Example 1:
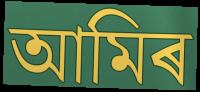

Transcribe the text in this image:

আমিৰ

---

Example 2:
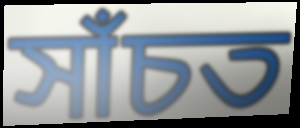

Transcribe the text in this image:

সাঁচত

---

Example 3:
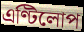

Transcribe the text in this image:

এণ্টিলোপ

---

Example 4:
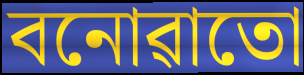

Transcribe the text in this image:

বনোৱাতো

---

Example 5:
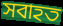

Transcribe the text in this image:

সবাহত